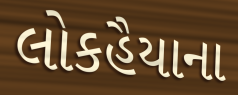
લોકહૈયાના